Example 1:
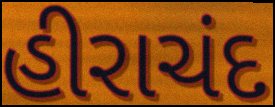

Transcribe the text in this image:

હીરાચંદ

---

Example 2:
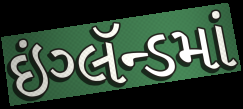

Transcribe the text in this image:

ઇંગ્લૅન્ડમાં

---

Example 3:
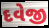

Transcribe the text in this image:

દવેજી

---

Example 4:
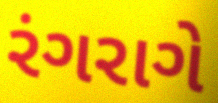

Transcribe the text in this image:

રંગરાગે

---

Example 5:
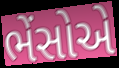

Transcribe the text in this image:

ભેંસોએ